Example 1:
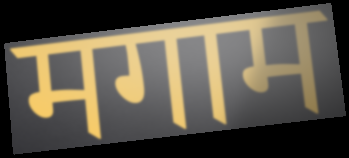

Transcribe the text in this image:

मगाम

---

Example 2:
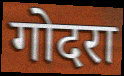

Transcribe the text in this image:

गोदरा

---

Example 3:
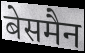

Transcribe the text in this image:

बेसमैन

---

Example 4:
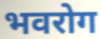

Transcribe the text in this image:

भवरोग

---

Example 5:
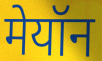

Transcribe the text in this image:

मेयॉन